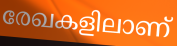
രേഖകളിലാണ്